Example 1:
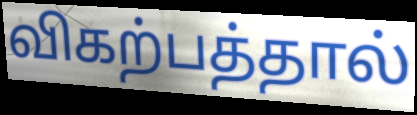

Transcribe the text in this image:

விகற்பத்தால்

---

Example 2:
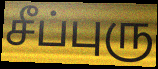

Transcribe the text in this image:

சீப்புரு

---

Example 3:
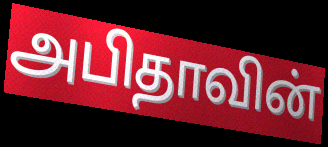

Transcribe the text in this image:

அபிதாவின்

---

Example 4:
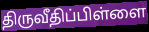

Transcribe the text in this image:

திருவீதிப்பிள்ளை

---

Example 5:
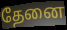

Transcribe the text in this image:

தேனை